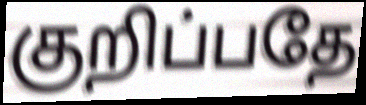
குறிப்பதே